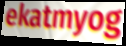
ekatmyog